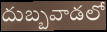
దుబ్బవాడలో